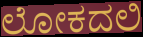
ಲೋಕದಲಿ